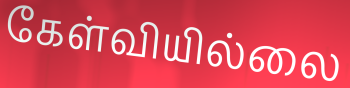
கேள்வியில்லை